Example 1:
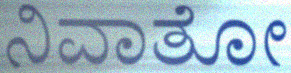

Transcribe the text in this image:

ನಿವಾತೋ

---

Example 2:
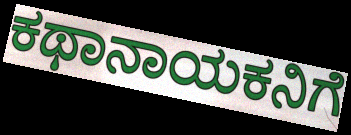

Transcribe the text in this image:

ಕಥಾನಾಯಕನಿಗೆ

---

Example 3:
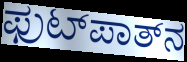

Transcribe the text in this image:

ಫುಟ್‌ಪಾತ್‌ನ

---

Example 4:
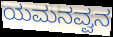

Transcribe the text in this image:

ಯಮನವ್ವನ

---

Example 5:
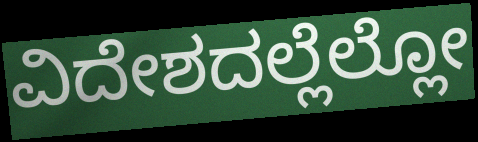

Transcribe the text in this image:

ವಿದೇಶದಲ್ಲೆಲ್ಲೋ